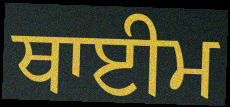
ਥਾਈਮ